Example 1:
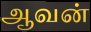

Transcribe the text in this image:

ஆவன்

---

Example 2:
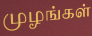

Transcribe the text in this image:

முழங்கள்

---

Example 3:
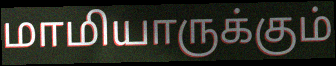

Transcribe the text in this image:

மாமியாருக்கும்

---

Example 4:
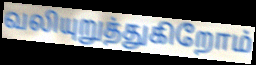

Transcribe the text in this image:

வலியுறுத்துகிறோம்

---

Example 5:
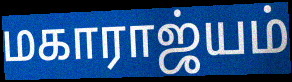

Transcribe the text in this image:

மகாராஜ்யம்